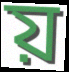
য়